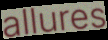
allures